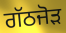
ਗੱਠਜੋੜ